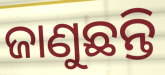
ଜାଣୁଛନ୍ତି